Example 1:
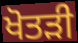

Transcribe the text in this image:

ਖੋਤੜੀ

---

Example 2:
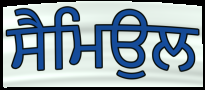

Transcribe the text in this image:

ਸੈਮਿਉਲ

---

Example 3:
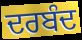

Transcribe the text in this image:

ਦਰਬੰਦ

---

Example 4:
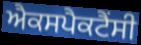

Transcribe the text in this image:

ਐਕਸਪੈਕਟੈਂਸੀ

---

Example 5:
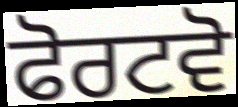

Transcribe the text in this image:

ਫੋਰਟਵੋ